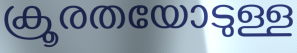
ക്രൂരതയോടുള്ള